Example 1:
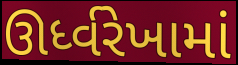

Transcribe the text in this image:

ઊર્ધ્વરેખામાં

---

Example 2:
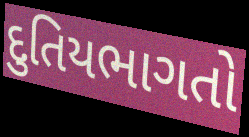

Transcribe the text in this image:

દુતિયભાગતો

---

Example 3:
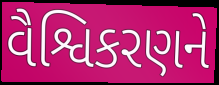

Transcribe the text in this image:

વૈશ્વિકરણને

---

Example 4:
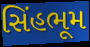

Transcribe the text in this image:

સિંહભૂમ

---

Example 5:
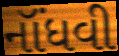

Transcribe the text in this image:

નૉંધવી